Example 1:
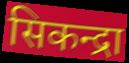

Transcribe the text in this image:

सिकन्द्रा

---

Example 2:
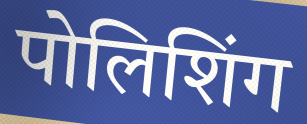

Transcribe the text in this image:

पोलिशिंग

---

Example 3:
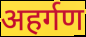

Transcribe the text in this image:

अहर्गण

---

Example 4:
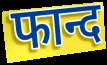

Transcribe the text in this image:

फान्द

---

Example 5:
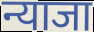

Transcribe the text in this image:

न्याजा